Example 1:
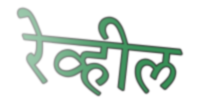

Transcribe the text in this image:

रेव्हील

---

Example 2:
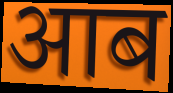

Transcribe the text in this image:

आब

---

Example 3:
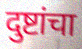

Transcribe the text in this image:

दुष्टांचा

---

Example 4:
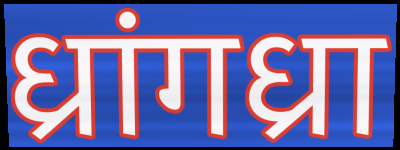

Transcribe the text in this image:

ध्रांगध्रा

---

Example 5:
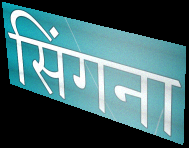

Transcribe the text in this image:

सिंगना